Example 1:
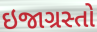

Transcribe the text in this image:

ઇજાગ્રસ્તો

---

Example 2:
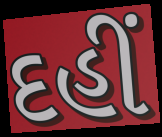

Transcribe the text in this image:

દહીં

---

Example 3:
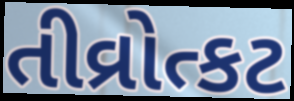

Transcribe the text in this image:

તીવ્રોત્કટ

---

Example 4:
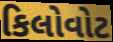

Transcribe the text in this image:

કિલોવોટ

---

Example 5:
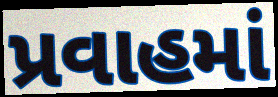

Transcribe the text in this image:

પ્રવાહમાં